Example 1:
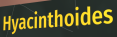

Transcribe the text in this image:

Hyacinthoides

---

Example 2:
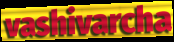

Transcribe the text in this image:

vashivarcha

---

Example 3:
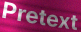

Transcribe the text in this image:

Pretext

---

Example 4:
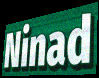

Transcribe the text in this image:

Ninad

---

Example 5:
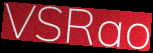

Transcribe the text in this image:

VSRao